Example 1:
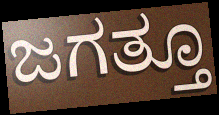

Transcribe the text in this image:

ಜಗತ್ತೂ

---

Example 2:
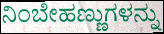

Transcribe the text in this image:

ನಿಂಬೇಹಣ್ಣುಗಳನ್ನು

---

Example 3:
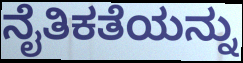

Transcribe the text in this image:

ನೈತಿಕತೆಯನ್ನು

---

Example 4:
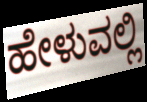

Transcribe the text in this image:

ಹೇಳುವಲ್ಲಿ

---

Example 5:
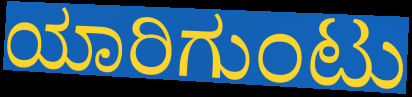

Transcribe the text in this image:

ಯಾರಿಗುಂಟು